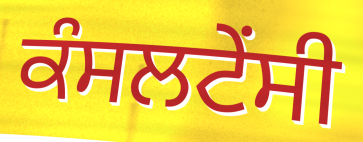
ਕੰਸਲਟੇਂਸੀ